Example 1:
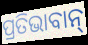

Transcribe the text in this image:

ପ୍ରତିଭାବାନ୍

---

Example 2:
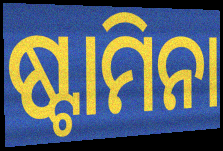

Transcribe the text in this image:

ଷ୍ଟାମିନା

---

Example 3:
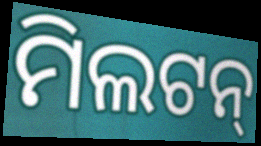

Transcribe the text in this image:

ମିଲଟନ୍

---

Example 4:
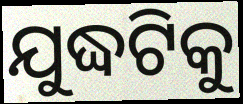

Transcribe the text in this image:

ଯୁଦ୍ଧଟିକୁ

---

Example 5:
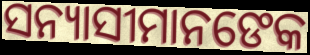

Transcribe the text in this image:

ସନ୍ୟାସୀମାନଙେକ